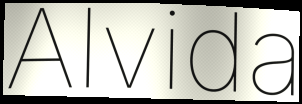
Alvida